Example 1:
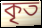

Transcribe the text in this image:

কৃত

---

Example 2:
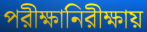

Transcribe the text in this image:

পরীক্ষানিরীক্ষায়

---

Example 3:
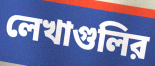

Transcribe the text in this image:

লেখাগুলির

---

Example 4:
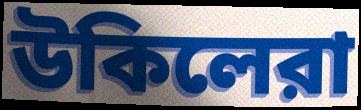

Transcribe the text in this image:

উকিলেরা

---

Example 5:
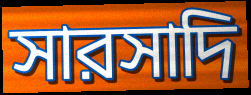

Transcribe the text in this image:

সারসাদি